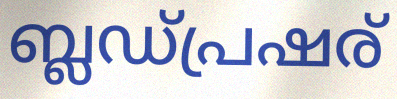
ബ്ലഡ്പ്രഷര്